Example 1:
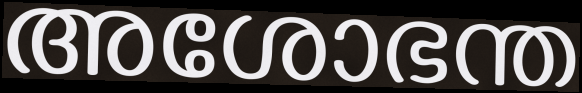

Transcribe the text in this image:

അശോഭന്ത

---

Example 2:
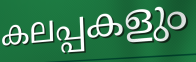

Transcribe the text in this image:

കലപ്പകളും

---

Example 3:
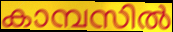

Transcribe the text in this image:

കാമ്പസിൽ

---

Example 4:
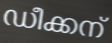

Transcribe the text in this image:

ഡീക്കന്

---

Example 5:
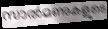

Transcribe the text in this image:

സാൽമണുകളുടെ